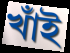
খাঁই